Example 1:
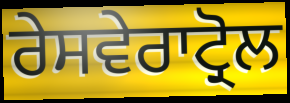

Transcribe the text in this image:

ਰੇਸਵੇਰਾਟ੍ਰੋਲ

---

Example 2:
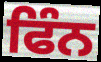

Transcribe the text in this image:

ਫਿੰਨ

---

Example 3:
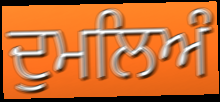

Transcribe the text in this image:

ਦੁਮਲਿਅੰ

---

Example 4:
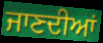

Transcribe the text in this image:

ਜਾਣਦੀਆਂ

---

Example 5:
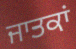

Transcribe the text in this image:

ਜਾਤਕਾਂ